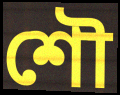
শৌ